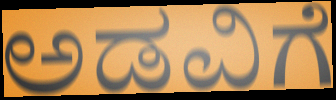
ಅಡವಿಗೆ